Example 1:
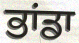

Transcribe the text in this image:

ਭਾਂਡਾ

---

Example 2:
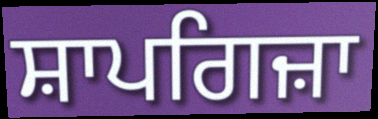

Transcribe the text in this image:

ਸ਼ਾਪਗਿਜ਼ਾ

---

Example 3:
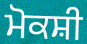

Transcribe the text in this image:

ਮੋਕਸ਼ੀ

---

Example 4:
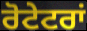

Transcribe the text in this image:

ਰੋਟੇਟਰਾਂ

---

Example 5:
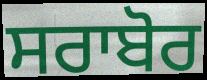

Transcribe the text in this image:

ਸਰਾਬੋਰ